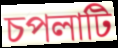
চপলাটি